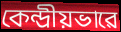
কেন্দ্ৰীয়ভাৱে